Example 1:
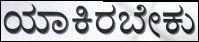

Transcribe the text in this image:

ಯಾಕಿರಬೇಕು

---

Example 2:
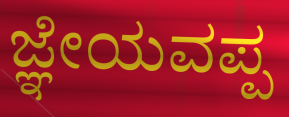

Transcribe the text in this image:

ಜ್ಞೇಯವಪ್ಪ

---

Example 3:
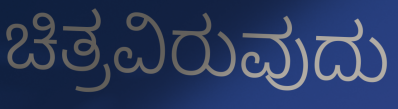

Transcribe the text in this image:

ಚಿತ್ರವಿರುವುದು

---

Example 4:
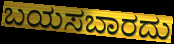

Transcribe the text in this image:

ಬಯಸಬಾರದು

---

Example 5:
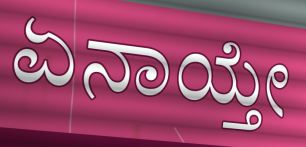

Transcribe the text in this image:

ಏನಾಯ್ತೇ